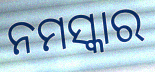
ନମସ୍କାର